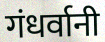
गंधर्वानी